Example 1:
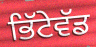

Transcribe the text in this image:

ਭਿੱਟੇਵੱਡ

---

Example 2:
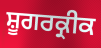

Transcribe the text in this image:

ਸ਼ੂਗਰਕ੍ਰੀਕ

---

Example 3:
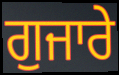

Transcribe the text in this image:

ਗੁਜਾਰੇ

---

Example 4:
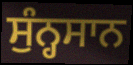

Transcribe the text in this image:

ਸੁੰਨ੍ਹਸਾਨ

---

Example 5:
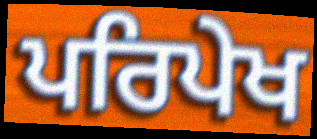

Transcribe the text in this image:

ਪਰਿਪੇਖ